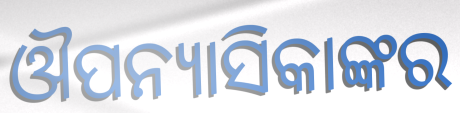
ଔପନ୍ୟାସିକାଙ୍କର